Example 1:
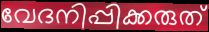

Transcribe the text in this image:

വേദനിപ്പിക്കരുത്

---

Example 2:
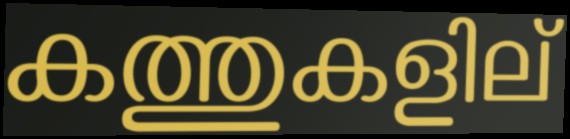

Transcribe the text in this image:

കത്തുകളില്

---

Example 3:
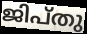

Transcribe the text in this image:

ജിപ്തു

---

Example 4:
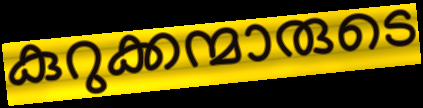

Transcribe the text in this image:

കുറുക്കന്മാരുടെ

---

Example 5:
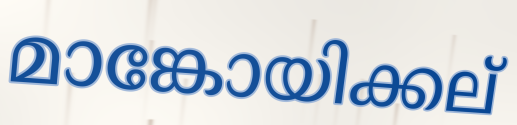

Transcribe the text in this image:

മാങ്കോയിക്കല്